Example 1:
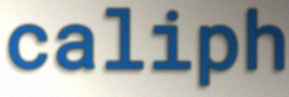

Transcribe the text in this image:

caliph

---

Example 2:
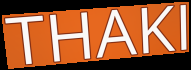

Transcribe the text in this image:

THAKI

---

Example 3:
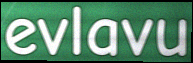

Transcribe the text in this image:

evlavu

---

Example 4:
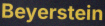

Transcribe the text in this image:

Beyerstein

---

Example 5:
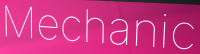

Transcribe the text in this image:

Mechanic